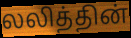
லலித்தின்